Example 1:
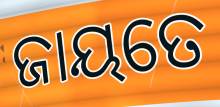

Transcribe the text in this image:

ଜାୟତେ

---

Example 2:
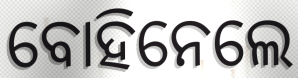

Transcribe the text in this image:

ବୋହିନେଲେ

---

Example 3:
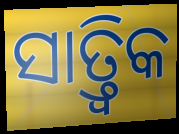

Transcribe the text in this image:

ସାତ୍ତ୍ବିକ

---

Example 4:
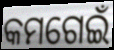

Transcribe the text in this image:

କମଗେଇଁ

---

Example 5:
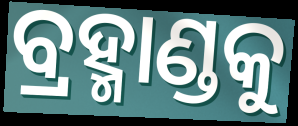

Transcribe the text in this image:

ବ୍ରହ୍ମାଣ୍ଡକୁ